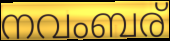
നവംബര്